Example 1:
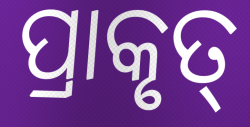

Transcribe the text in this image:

ପ୍ରାକୃତ୍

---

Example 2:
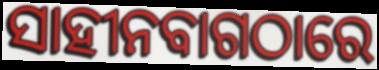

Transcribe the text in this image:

ସାହୀନବାଗଠାରେ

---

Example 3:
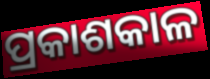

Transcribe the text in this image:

ପ୍ରକାଶକାଳ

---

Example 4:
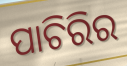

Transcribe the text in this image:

ପାଚିରିର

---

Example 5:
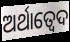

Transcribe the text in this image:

ଅର୍ଥାତ୍ବେଦ